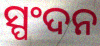
ସ୍ପଂଦନ